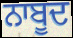
ਨਾਬੂਦ